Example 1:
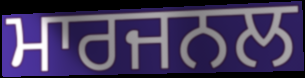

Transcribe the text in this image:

ਮਾਰਜਨਲ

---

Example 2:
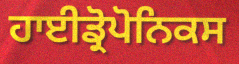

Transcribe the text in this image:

ਹਾਈਡ੍ਰੋਪੋਨਿਕਸ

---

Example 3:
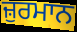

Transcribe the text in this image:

ਜ਼ੁਰਮਾਨ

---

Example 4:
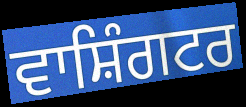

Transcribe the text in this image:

ਵਾਸ਼ਿੰਗਟਰ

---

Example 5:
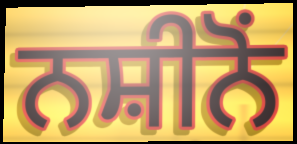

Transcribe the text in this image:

ਨਸ਼ੀਨੋਂ